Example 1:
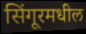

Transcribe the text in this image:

सिंगूरमधील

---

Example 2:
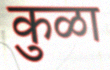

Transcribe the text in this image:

कुळा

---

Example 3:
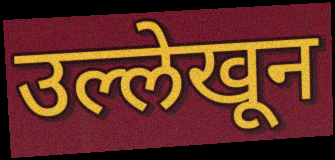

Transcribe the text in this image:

उल्लेखून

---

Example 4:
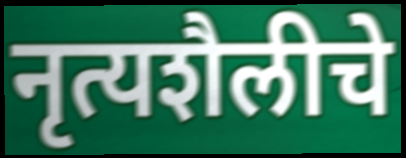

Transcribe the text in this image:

नृत्यशैलीचे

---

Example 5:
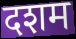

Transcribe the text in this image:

दशम